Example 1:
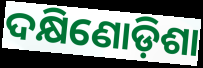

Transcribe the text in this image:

ଦକ୍ଷିଣୋଡ଼ିଶା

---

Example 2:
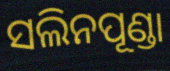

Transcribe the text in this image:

ସଲିନପୂଣ୍ଡା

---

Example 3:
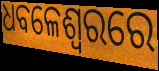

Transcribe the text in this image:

ଧବଳେଶ୍ଵରରେ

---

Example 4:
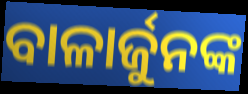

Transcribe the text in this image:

ବାଳାର୍ଜୁନଙ୍କ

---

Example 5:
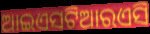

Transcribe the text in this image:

ଆଇଏସଟିଆରଏସି